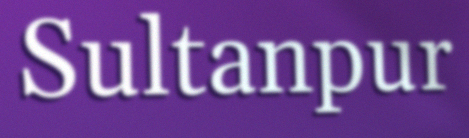
Sultanpur